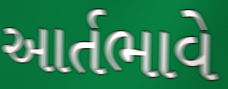
આર્તભાવે